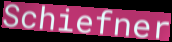
Schiefner